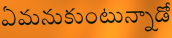
ఏమనుకుంటున్నాడో